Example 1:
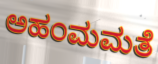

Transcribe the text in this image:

ಅಹಂಮಮತೆ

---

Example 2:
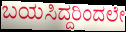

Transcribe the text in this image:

ಬಯಸಿದ್ದರಿಂದಲೇ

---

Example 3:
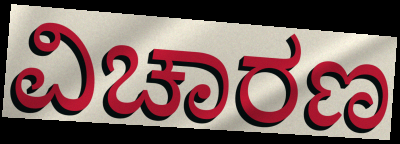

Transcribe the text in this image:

ವಿಚಾರಣ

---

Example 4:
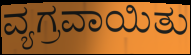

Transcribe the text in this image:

ವ್ಯಗ್ರವಾಯಿತು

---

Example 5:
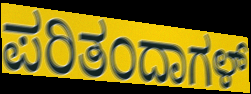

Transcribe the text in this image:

ಪರಿತಂದಾಗಳ್